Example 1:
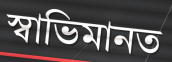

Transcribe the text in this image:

স্বাভিমানত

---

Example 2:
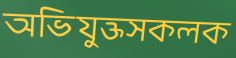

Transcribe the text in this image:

অভিযুক্তসকলক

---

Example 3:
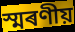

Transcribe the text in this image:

স্মৰণীয়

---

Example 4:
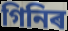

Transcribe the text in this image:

গিনিৰ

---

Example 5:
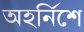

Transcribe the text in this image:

অহৰ্নিশে